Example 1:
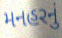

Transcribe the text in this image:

મનહરનું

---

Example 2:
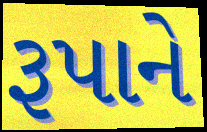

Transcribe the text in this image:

રૂપાને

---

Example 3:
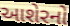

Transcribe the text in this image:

આશેરનો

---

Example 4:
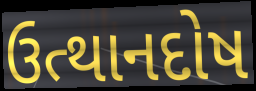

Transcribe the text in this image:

ઉત્થાનદોષ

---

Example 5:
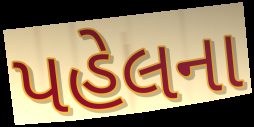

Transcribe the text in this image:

પહેલના